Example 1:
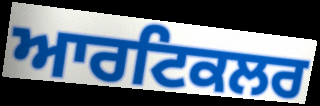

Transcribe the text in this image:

ਆਰਟਿਕਲਰ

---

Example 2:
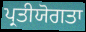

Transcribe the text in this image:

ਪ੍ਰਤੀਯੋਗਤਾ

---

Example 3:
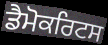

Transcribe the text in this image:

ਡੈਮੋਕਰਿਟਸ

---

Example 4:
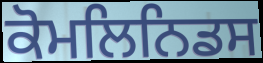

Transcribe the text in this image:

ਕੋਮਲਿਨਿਡਸ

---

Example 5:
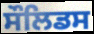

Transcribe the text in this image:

ਸੌਲਿਡਸ